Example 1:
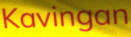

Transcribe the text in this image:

Kavingan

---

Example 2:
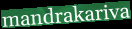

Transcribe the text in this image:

mandrakariva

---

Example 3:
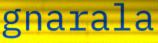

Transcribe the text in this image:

gnarala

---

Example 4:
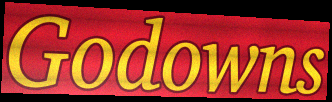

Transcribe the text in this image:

Godowns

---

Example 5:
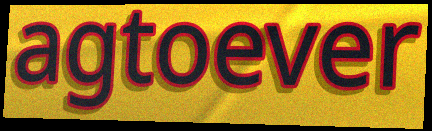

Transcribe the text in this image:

agtoever